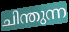
ചിന്തുന്ന